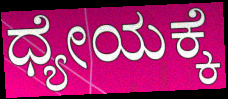
ಧ್ಯೇಯಕ್ಕೆ